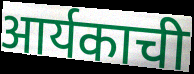
आर्यकाची